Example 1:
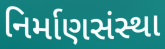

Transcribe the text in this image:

નિર્માણસંસ્થા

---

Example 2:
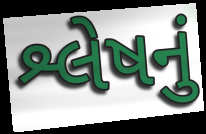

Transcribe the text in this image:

શ્લેષનું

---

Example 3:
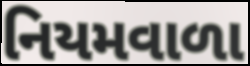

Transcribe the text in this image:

નિયમવાળા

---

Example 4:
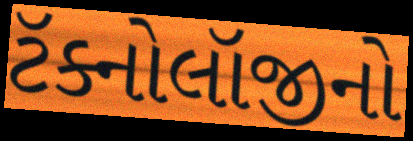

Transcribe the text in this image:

ટૅક્નોલૉજીનો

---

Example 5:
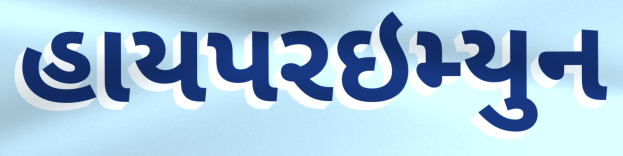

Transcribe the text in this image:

હાયપરઇમ્યુન